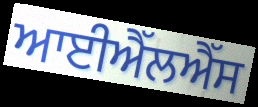
ਆਈਐੱਲਐੱਸ